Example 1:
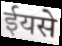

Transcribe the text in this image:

ईयसे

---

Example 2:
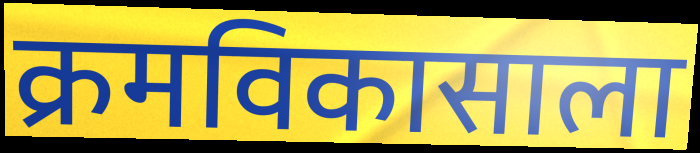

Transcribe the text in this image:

क्रमविकासाला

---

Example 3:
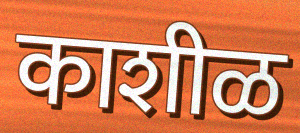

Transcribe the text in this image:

काशीळ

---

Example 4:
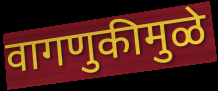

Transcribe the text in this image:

वागणुकीमुळे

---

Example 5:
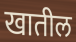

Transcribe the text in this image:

खातील